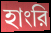
হাংরি